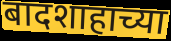
बादशाहाच्या